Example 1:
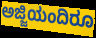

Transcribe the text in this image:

ಅಜ್ಜಿಯಂದಿರೂ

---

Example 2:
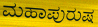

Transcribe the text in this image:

ಮಹಾಪುರುಷ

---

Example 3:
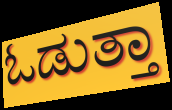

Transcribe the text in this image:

ಓಡುತ್ತಾ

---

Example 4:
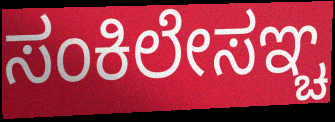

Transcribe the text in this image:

ಸಂಕಿಲೇಸಞ್ಚ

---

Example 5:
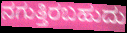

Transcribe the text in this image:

ನಗುತ್ತಿರಬಹುದು